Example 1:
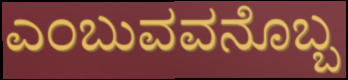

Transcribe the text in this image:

ಎಂಬುವವನೊಬ್ಬ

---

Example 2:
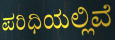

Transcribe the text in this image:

ಪರಿಧಿಯಲ್ಲಿವೆ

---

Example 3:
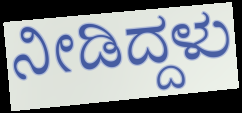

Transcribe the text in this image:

ನೀಡಿದ್ದಳು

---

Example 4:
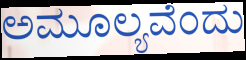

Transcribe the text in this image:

ಅಮೂಲ್ಯವೆಂದು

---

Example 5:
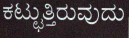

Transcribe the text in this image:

ಕಟ್ಟುತ್ತಿರುವುದು